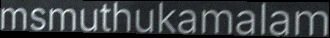
msmuthukamalam